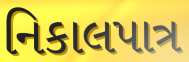
નિકાલપાત્ર